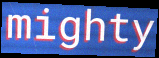
mighty